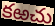
కఱచు